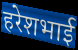
हरेशभाई